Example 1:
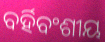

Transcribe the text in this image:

ବର୍ହିବଂଶୀୟ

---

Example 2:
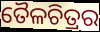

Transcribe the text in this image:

ତୈଳଚିତ୍ରର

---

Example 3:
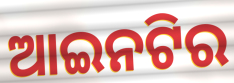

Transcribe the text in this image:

ଆଇନଟିର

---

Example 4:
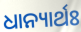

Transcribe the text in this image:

ଧାନ୍ୟାର୍ଥଃ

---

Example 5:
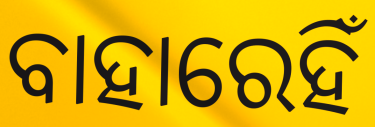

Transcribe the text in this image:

ବାହାରେହିଁ